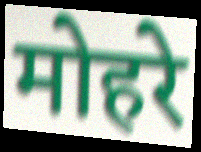
मोहरे